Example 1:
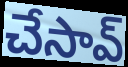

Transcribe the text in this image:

చేసావ్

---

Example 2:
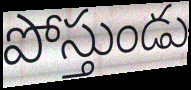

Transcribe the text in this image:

పోస్తుండు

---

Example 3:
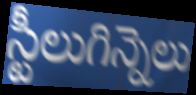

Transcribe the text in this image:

స్టీలుగిన్నెలు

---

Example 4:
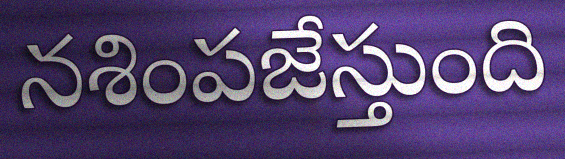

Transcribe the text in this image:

నశింపజేస్తుంది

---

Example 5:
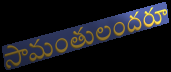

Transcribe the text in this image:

సామంతులందరూ